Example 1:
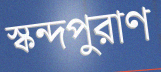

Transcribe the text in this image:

স্কন্দপুরাণ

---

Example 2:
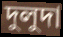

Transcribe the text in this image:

দুলুদা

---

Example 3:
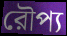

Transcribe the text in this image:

রৌপ্য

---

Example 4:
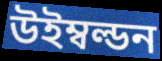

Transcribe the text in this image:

উইম্বল্ডন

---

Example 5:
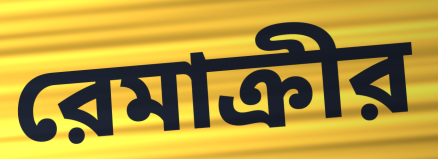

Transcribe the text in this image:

রেমাক্রীর